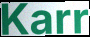
Karr